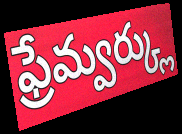
ఫ్రేమ్వర్క్లు